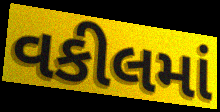
વકીલમાં